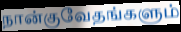
நான்குவேதங்களும்